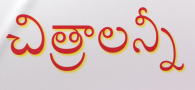
చిత్రాలన్నీ